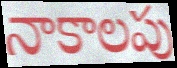
నాకాలపు